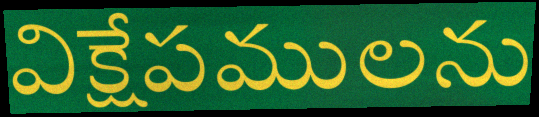
విక్షేపములను